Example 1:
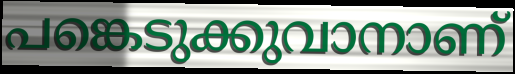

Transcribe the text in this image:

പങ്കെടുക്കുവാനാണ്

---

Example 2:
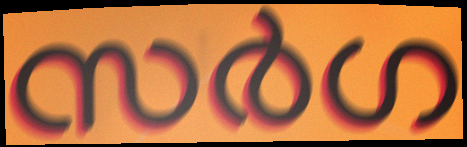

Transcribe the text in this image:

സർഗ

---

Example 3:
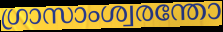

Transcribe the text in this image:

ഗ്രാസാംശ്വരന്തോ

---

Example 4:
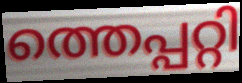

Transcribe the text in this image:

ത്തെപ്പറ്റി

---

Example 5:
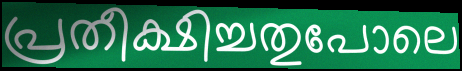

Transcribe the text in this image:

പ്രതീക്ഷിച്ചതുപോലെ